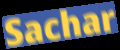
Sachar